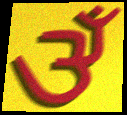
ঔঁ